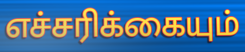
எச்சரிக்கையும்